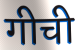
गीची